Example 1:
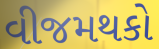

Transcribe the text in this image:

વીજમથકો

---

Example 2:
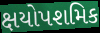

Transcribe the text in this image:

ક્ષયોપશમિક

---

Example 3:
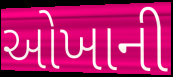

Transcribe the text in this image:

ઓખાની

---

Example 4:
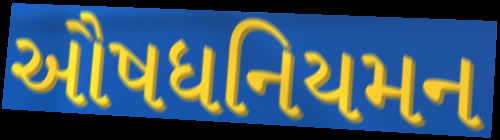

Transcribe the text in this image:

ઔષધનિયમન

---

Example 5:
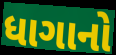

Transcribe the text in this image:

ધાગાનો